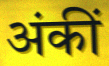
अंकीं